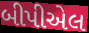
બીપીએલ